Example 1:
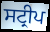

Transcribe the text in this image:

ਸਟ੍ਰੀਪ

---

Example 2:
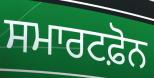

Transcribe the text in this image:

ਸਮਾਰਟਫ਼ੋਨ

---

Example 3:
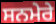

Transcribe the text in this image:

ਸਨਮੇਰੇ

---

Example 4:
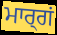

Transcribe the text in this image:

ਮਾਰ੍ਗਂ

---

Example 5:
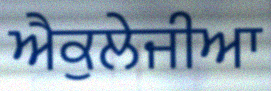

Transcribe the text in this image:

ਐਕੁਲੇਜੀਆ